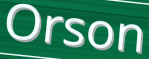
Orson